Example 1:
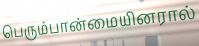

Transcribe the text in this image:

பெரும்பான்மையினரால்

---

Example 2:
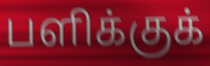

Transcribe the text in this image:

பளிக்குக்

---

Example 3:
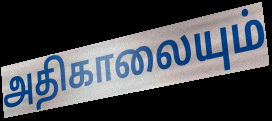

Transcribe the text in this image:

அதிகாலையும்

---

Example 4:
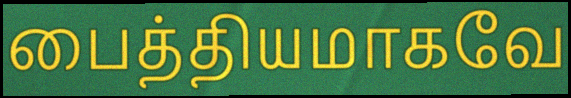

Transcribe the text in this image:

பைத்தியமாகவே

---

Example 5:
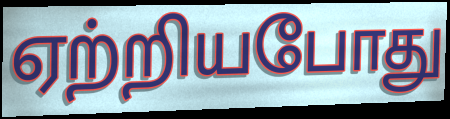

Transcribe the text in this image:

ஏற்றியபோது